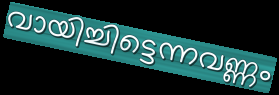
വായിച്ചിട്ടെന്നവണ്ണം